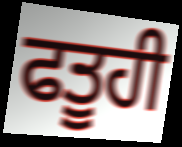
ਫਤੂਹੀ